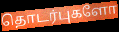
தொடர்புகளோ